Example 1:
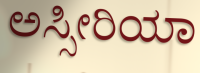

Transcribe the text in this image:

ಅಸ್ಸೀರಿಯಾ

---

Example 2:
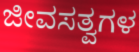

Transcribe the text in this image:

ಜೀವಸತ್ವಗಳ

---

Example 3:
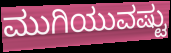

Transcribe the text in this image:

ಮುಗಿಯುವಷ್ಟು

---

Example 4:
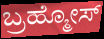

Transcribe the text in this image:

ಬ್ರಹ್ಮೋಸ್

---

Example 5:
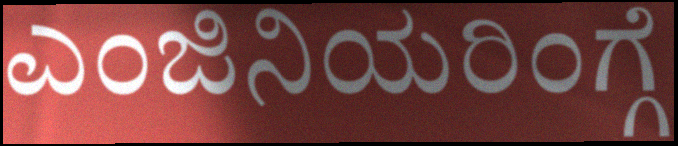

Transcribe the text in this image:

ಎಂಜಿನಿಯರಿಂಗ್ಗೆ